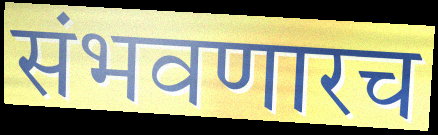
संभवणारच